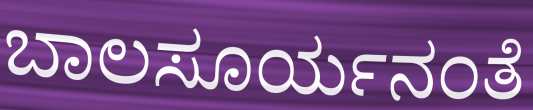
ಬಾಲಸೂರ್ಯನಂತೆ